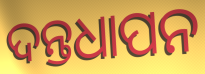
ଦନ୍ତଧାପନ